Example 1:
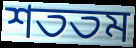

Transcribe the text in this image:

শততম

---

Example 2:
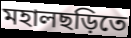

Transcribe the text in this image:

মহালছড়িতে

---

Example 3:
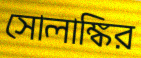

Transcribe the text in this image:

সোলাঙ্কির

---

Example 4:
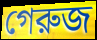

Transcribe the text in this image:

গেরুজ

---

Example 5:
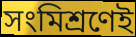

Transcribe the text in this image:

সংমিশ্রণেই